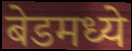
बेडमध्ये